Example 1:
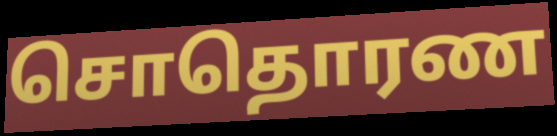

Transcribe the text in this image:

சொதொரண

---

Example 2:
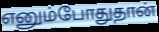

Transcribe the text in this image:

எனும்போதுதான்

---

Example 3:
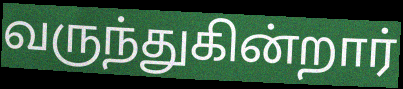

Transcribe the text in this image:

வருந்துகின்றார்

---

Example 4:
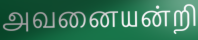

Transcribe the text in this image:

அவனையன்றி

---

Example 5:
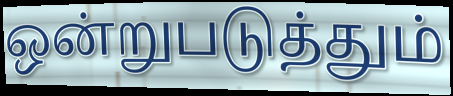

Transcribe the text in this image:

ஒன்றுபடுத்தும்